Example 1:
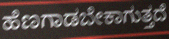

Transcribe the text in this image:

ಹೆಣಗಾಡಬೇಕಾಗುತ್ತದೆ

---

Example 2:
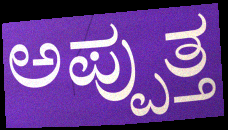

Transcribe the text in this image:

ಅಪ್ಪುತ್ತ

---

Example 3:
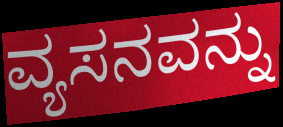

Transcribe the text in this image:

ವ್ಯಸನವನ್ನು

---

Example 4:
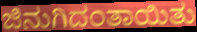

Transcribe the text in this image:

ಜಿನುಗಿದಂತಾಯಿತು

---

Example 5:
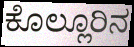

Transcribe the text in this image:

ಕೊಲ್ಲೂರಿನ